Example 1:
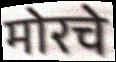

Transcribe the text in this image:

मोरचे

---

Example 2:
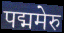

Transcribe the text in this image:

पद्ममेरु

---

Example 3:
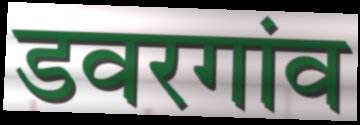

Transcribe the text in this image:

डवरगांव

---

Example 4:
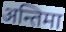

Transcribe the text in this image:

अन्तिमा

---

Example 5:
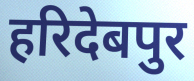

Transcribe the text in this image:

हरिदेबपुर